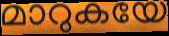
മാറുകയേ